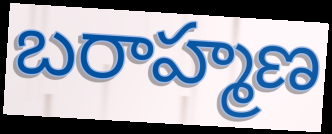
బరాహ్మణ